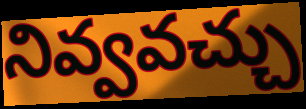
నివ్వవచ్చు